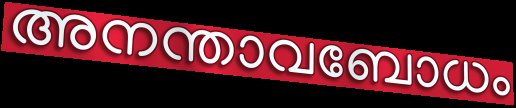
അനന്താവബോധം